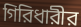
গিরিধারীর